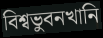
বিশ্বভুবনখানি